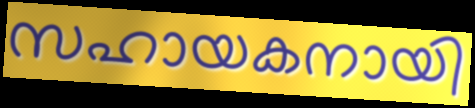
സഹായകനായി